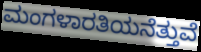
ಮಂಗಳಾರತಿಯನೆತ್ತುವೆ